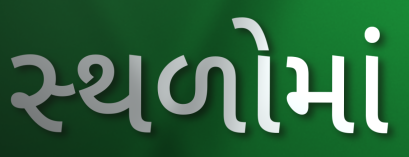
સ્‍થળોમાં